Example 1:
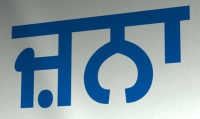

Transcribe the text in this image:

ਜ਼ਨਾ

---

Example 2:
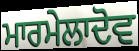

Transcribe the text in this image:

ਮਾਰਮੇਲਾਦੋਵ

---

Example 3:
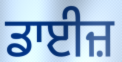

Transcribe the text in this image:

ਡਾਈਜ਼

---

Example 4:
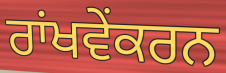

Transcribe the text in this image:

ਰਾਂਖਵੇਂਕਰਨ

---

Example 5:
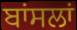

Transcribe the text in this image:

ਬਾਂਸਲਾਂ